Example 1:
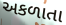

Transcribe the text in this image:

અકળાતા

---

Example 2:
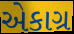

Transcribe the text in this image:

એકાગ્ર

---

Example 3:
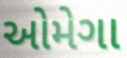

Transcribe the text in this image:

ઓમેગા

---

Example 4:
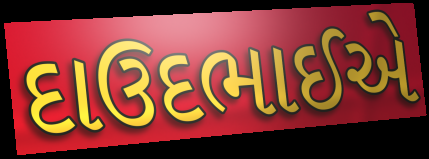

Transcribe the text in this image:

દાઉદભાઈએ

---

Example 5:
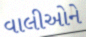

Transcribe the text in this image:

વાલીઓને